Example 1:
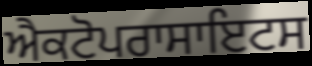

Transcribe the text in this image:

ਐਕਟੋਪਰਾਸਾਇਟਸ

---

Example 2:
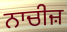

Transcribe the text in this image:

ਨਾਚੀਜ਼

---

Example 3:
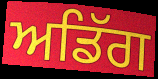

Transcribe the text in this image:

ਅਡਿੱਗ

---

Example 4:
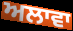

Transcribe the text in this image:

ਅਲਾਵਾ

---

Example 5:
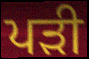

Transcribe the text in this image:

ਪਡ਼ੀ